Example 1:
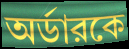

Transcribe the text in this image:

অর্ডারকে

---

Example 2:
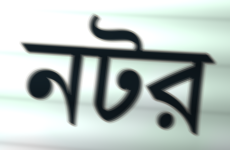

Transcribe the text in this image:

নটর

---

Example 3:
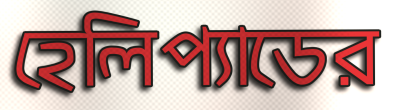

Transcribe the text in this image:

হেলিপ্যাডের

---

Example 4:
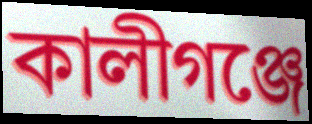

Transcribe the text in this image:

কালীগঞ্জে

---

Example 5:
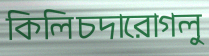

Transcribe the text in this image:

কিলিচদারোগলু